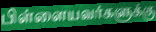
பிள்ளையவர்களுக்கு